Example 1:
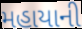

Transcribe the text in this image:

મહાયાની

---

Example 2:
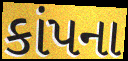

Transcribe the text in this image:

કાંપના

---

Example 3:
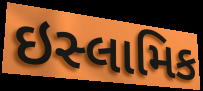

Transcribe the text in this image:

ઇસ્લામિક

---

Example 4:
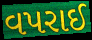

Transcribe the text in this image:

વપરાઈ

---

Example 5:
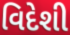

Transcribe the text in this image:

વિદેશી